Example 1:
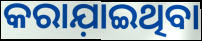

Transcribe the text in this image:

କରାଯ଼ାଇଥିବା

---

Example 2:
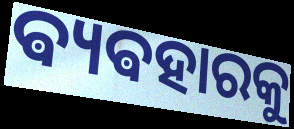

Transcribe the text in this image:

ଵ୍ୟଵହାରକୁ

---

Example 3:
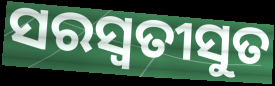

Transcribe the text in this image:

ସରସ୍ୱତୀସୁତ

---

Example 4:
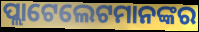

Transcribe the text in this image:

ପ୍ଲାଟେଲେଟମାନଙ୍କର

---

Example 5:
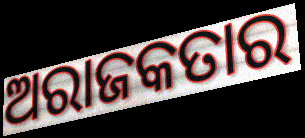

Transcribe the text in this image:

ଅରାଜକତାର